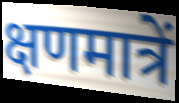
क्षणमात्रें